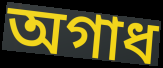
অগাধ